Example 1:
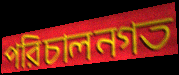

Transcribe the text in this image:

পরিচালনগত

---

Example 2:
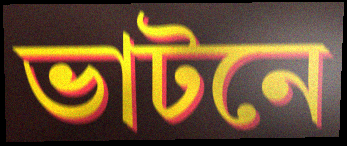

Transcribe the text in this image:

ভাটনে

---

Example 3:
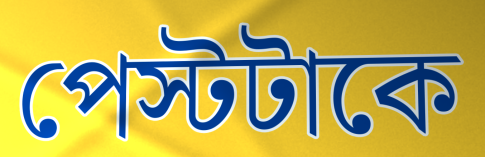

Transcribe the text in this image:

পেস্টটাকে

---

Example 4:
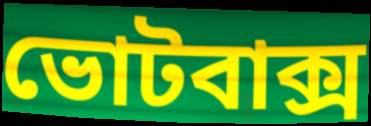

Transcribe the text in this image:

ভোটবাক্স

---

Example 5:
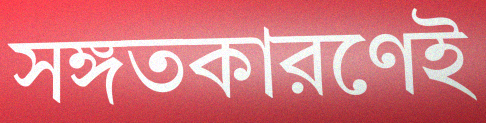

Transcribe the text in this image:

সঙ্গতকারণেই